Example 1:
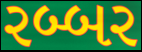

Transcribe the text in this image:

રબ્બર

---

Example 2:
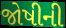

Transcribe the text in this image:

જોષીની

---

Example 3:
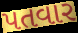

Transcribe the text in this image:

પતવાર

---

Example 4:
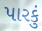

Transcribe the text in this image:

પારકું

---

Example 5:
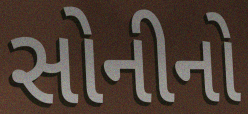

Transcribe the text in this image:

સોનીનો